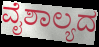
ವೈಶಾಲ್ಯದ